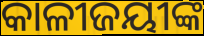
କାଳୀଜୟୀଙ୍କ